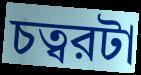
চত্বরটা